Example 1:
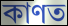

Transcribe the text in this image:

কাণত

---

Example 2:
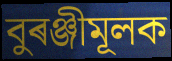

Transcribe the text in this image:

বুৰঞ্জীমূলক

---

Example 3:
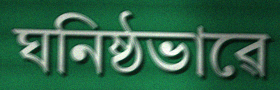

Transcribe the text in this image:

ঘনিষ্ঠভাৱে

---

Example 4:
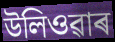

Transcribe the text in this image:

উলিওৱাৰ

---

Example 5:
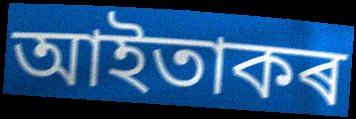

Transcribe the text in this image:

আইতাকৰ